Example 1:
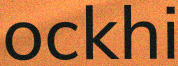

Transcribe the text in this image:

ockhi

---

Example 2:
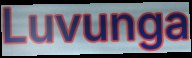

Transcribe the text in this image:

Luvunga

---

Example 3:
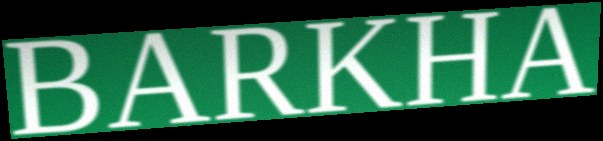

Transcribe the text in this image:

BARKHA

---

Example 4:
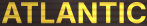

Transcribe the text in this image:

ATLANTIC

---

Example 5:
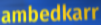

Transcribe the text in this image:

ambedkarr